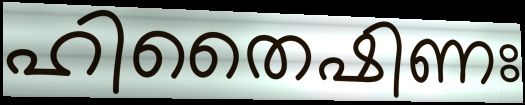
ഹിതൈഷിണഃ